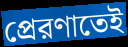
প্রেরণাতেই